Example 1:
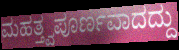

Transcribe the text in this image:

ಮಹತ್ತ್ವಪೂರ್ಣವಾದದ್ದು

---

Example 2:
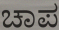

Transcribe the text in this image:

ಚಾಪ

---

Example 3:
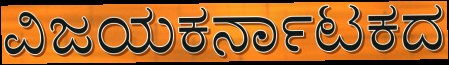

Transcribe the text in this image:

ವಿಜಯಕರ್ನಾಟಕದ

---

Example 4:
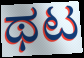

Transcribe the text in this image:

ಥಟ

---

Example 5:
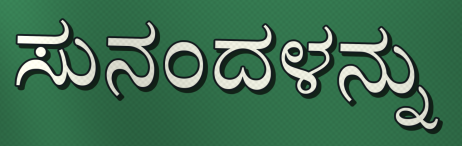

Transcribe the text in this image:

ಸುನಂದಳನ್ನು